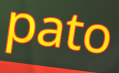
pato